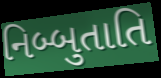
નિબ્બુતાતિ